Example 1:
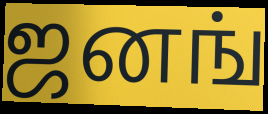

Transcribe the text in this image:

ஜனங்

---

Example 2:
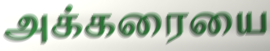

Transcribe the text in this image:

அக்கரையை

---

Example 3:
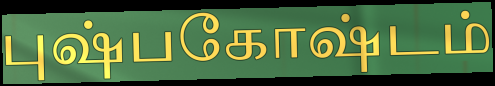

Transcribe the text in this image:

புஷ்பகோஷ்டம்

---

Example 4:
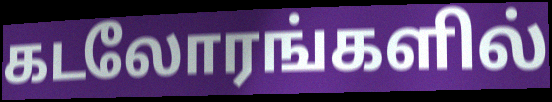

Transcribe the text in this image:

கடலோரங்களில்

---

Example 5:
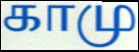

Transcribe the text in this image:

காமு